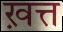
ख़त्त